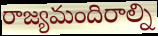
రాజ్యమందిరాల్ని